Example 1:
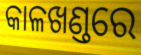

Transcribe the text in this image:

କାଳଖଣ୍ଡରେ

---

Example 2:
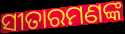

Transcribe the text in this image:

ସୀତାରମଣଙ୍କ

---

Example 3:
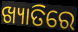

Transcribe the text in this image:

ଖ୍ୟାତିରେ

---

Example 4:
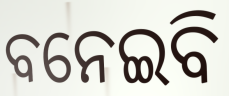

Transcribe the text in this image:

ବନେଇବି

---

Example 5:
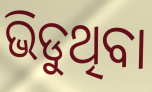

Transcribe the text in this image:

ଭିଡୁଥିବା